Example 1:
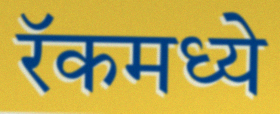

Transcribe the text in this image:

रॅकमध्ये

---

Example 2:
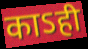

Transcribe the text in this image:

काऽही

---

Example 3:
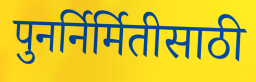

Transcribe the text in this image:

पुनर्निर्मितीसाठी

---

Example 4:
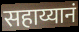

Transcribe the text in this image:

सहाय्यानं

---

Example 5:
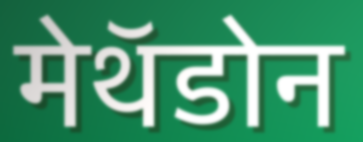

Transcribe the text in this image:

मेथॅडोन